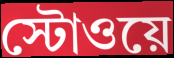
স্টোওয়ে